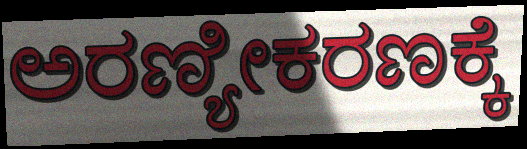
ಅರಣ್ಯೀಕರಣಕ್ಕೆ